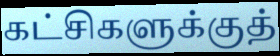
கட்சிகளுக்குத்